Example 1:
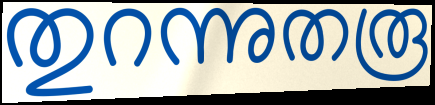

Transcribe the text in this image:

തുറന്നുതരൂ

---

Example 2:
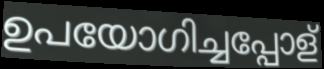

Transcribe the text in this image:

ഉപയോഗിച്ചപ്പോള്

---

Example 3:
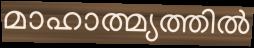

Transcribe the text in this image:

മാഹാത്മ്യത്തിൽ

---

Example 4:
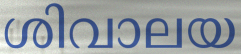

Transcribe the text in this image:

ശിവാലയ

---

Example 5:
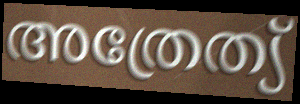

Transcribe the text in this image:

അത്രേത്യ്